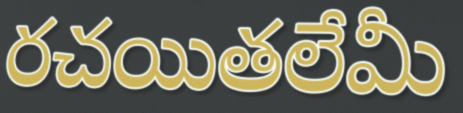
రచయితలేమీ